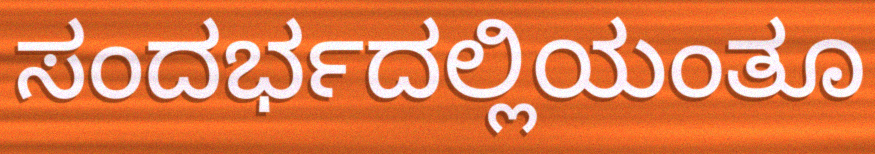
ಸಂದರ್ಭದಲ್ಲಿಯಂತೂ